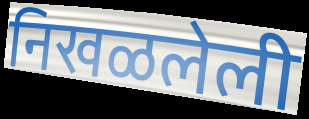
निखळलेली